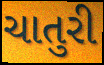
ચાતુરી